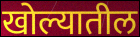
खोल्यातील